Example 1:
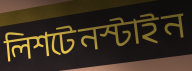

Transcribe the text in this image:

লিশটেনস্টাইন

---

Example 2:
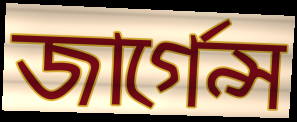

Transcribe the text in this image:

জার্গেন্স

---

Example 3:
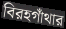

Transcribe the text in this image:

বিরহগাঁথার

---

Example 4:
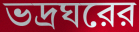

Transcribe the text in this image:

ভদ্রঘরের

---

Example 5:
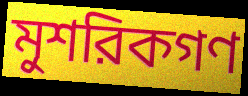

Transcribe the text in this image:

মুশরিকগণ